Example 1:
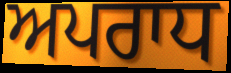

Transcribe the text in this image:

ਅਪਰਾਧ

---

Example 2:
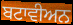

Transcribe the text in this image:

ਬਟਾਵੀਅਨ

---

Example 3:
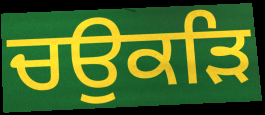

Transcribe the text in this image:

ਚਉਕੜਿ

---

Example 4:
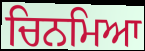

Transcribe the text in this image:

ਚਿਨਮਿਆ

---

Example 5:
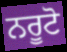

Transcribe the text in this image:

ਨਰੂਟੋ